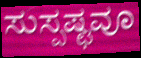
ಸುಸ್ಪಷ್ಟವೂ